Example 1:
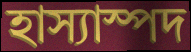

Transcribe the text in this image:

হাস্যাস্পদ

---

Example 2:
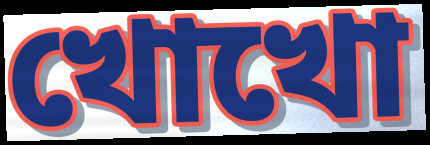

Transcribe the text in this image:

খোখো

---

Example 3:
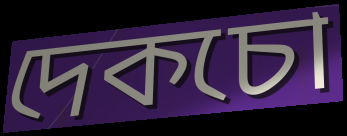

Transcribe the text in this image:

দেকচো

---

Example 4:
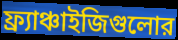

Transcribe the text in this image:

ফ্র্যাঞ্চাইজিগুলোর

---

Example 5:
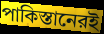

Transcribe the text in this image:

পাকিস্তানেরই